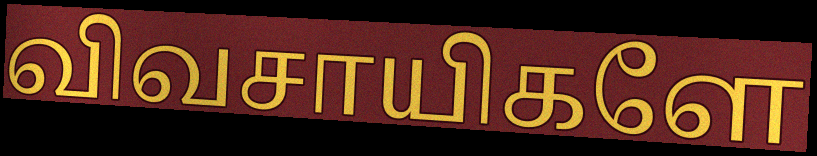
விவசாயிகளே